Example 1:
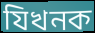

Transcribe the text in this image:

যিখনক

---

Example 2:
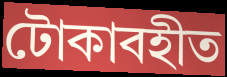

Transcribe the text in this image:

টোকাবহীত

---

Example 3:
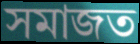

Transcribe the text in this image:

সমাজত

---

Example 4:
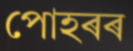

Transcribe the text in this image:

পোহৰৰ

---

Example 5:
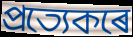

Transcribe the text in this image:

প্ৰত্যেকৰে